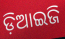
ଡ଼ିଆଇଜି